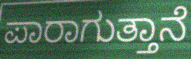
ಪಾರಾಗುತ್ತಾನೆ